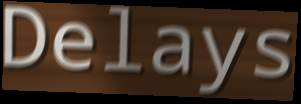
Delays